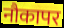
नौकापर